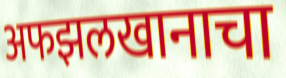
अफझलखानाचा